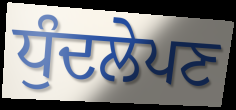
ਧੁੰਦਲੇਪਣ